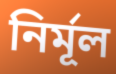
নির্মূল